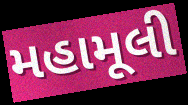
મહામૂલી